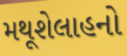
મથૂશેલાહનો